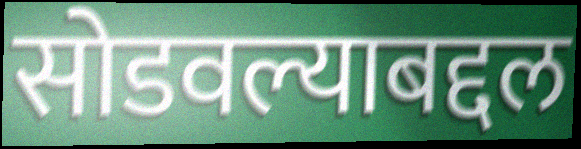
सोडवल्याबद्दल